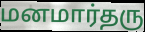
மனமார்தரு